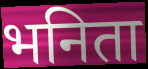
भनिता